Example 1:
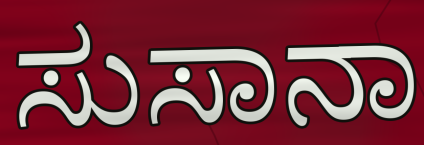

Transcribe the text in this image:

ಸುಸಾನಾ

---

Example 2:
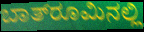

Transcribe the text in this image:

ಬಾತ್‌ರೂಮಿನಲ್ಲಿ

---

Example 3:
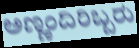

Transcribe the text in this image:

ಅಣ್ಣಂದಿರಿಬ್ಬರು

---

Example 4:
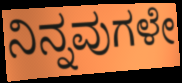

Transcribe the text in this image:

ನಿನ್ನವುಗಳೇ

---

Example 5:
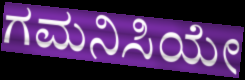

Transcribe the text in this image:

ಗಮನಿಸಿಯೇ